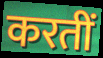
करतीं